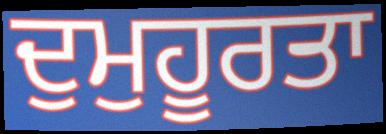
ਦੁਮੁਹੂਰਤਾ